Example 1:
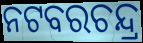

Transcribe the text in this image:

ନଟବରଚନ୍ଦ୍ର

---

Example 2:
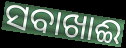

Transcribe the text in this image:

ସବାଖାଈ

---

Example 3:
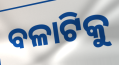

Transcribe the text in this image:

ବଳାଟିକୁ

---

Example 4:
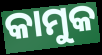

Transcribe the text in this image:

କାମୁକ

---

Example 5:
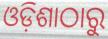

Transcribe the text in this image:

ଓଡ଼ିଶାଠାରୁ